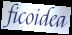
ficoidea